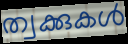
ത്വക്കുകൾ